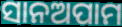
ସାନଅପାମ